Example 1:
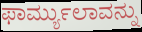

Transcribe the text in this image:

ಫಾರ್ಮ್ಯುಲಾವನ್ನು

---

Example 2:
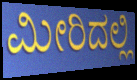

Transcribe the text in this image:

ಮೀರಿದಲ್ಲಿ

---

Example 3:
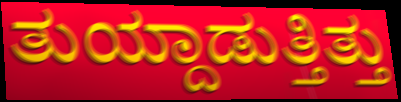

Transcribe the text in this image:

ತುಯ್ದಾಡುತ್ತಿತ್ತು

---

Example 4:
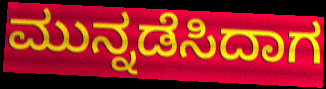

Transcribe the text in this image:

ಮುನ್ನಡೆಸಿದಾಗ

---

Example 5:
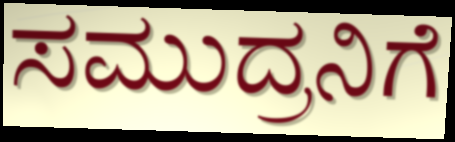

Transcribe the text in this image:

ಸಮುದ್ರನಿಗೆ